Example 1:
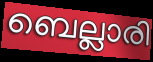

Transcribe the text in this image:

ബെല്ലാരി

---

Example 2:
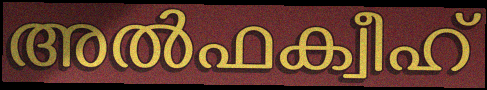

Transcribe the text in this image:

അൽഫക്വീഹ്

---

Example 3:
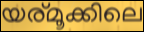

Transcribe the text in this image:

യര്മൂക്കിലെ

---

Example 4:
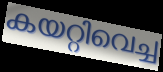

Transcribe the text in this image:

കയറ്റിവെച്ച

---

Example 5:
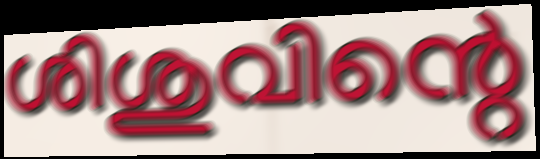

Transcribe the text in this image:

ശിശുവിന്റെ